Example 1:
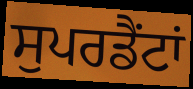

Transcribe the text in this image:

ਸੁਪਰਡੈਂਟਾਂ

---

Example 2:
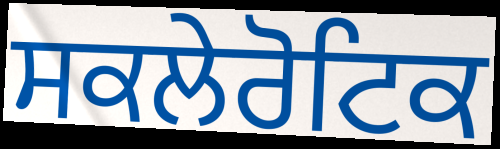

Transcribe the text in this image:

ਸਕਲੇਰੋਟਿਕ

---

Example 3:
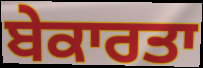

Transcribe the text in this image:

ਬੇਕਾਰਤਾ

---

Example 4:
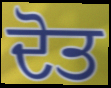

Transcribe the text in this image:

ਦੋਤ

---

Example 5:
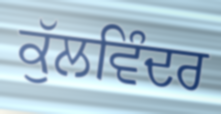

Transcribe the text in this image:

ਕੁੱਲਵਿੰਦਰ